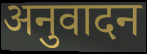
अनुवादन